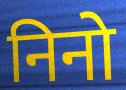
निनो